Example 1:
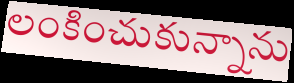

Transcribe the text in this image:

లంకించుకున్నాను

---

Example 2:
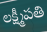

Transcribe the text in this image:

లక్ష్మీపతి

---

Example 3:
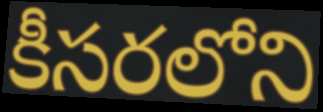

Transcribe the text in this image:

కీసరలోని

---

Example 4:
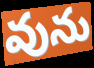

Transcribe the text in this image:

వును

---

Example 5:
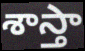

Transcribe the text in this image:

శాస్తా